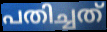
പതിച്ചത്